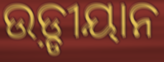
ଉଡ଼୍ଡୀୟାନ